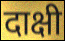
दाक्षी